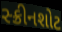
સ્ક્રીનશોટ